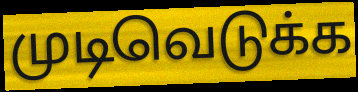
முடிவெடுக்க